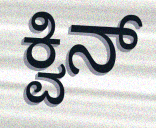
ಕ್ವಿನ್